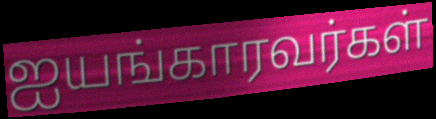
ஐயங்காரவர்கள்